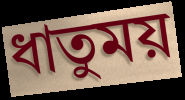
ধাতুময়